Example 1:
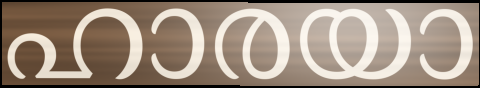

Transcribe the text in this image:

ഹാരയാ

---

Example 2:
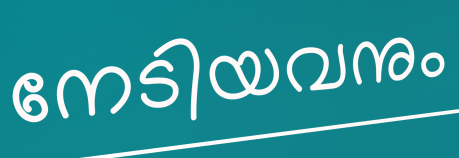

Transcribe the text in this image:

നേടിയവനും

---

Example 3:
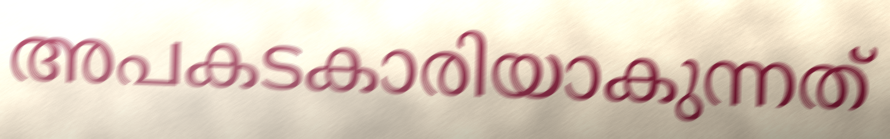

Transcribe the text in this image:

അപകടകാരിയാകുന്നത്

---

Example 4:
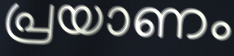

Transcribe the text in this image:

പ്രയാണം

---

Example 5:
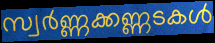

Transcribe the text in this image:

സ്വർണ്ണക്കണ്ണടകൾ